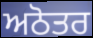
ਅਠੋਤਰ